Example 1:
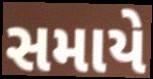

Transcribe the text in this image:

સમાયે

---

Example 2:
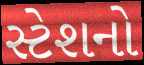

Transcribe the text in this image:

સ્ટેશનો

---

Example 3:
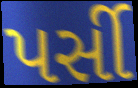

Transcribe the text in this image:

પર્સી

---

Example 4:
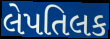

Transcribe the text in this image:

લેપતિલક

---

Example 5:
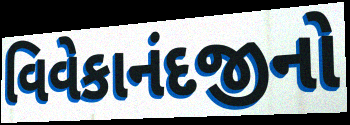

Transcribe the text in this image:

વિવેકાનંદજીનો